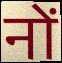
नों